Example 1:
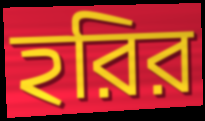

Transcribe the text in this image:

হরির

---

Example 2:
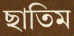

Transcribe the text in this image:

ছাতিম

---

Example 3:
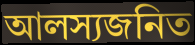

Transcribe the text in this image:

আলস্যজনিত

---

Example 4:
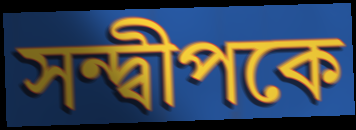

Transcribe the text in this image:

সন্দ্বীপকে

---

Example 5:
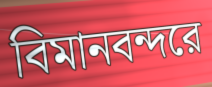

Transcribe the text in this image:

বিমানবন্দরে